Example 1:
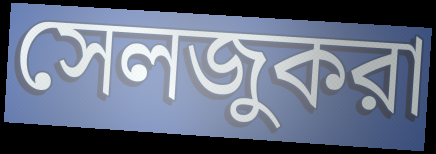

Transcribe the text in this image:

সেলজুকরা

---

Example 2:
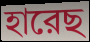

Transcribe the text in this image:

হারেছ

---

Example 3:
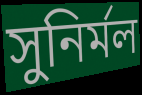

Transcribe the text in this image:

সুনির্মল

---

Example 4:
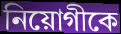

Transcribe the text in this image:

নিয়োগীকে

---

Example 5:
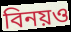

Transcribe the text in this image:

বিনয়ও